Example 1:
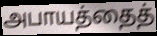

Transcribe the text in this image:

அபாயத்தைத்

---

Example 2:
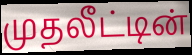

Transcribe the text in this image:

முதலீட்டின்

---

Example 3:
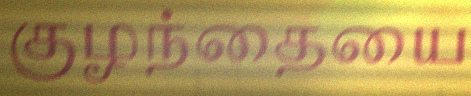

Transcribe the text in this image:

குழந்தையை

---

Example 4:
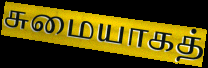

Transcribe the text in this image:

சுமையாகத்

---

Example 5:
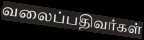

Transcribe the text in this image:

வலைப்பதிவர்கள்